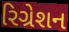
રિગ્રેશન